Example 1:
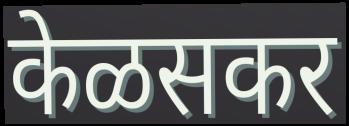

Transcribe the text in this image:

केळसकर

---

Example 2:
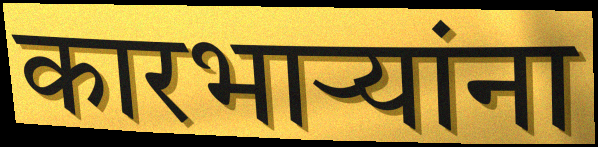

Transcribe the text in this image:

कारभाऱ्यांना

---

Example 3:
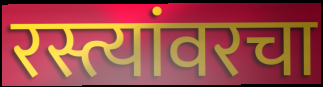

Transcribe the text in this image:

रस्त्यांवरचा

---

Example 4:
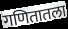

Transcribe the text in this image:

गणितातला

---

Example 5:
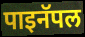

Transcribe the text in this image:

पाइनॅपल